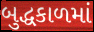
બુદ્ધકાળમાં